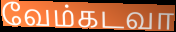
வேம்கடவா